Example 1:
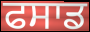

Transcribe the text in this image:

ਫਸਾਡ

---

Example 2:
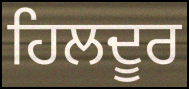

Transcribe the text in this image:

ਹਿਲਦੂਰ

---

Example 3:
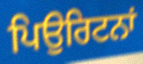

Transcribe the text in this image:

ਪਿਉਰਿਟਨਾਂ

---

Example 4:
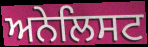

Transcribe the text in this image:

ਅਨੇਲਿਸਟ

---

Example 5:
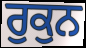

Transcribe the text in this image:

ਰੁਕੁਨ